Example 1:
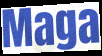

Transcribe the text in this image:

Maga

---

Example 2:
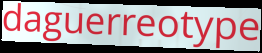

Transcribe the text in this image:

daguerreotype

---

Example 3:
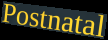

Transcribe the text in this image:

Postnatal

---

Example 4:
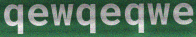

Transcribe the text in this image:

qewqeqwe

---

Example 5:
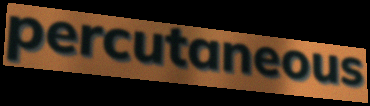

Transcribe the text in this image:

percutaneous